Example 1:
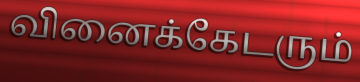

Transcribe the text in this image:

வினைக்கேடரும்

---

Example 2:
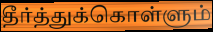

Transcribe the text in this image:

தீர்த்துக்கொள்ளும்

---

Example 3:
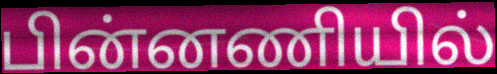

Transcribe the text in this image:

பின்னணியில்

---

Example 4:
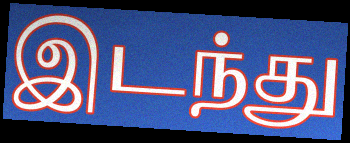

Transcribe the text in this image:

இடந்து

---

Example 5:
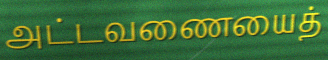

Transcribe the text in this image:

அட்டவணையைத்